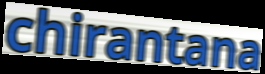
chirantana